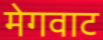
मेगवाट